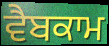
ਵੈਬਕਾਮ